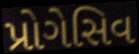
પ્રોગેસિવ